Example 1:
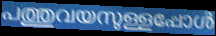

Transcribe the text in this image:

പത്തുവയസുള്ളപ്പോൾ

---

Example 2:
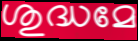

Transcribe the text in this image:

ശുദ്ധമേ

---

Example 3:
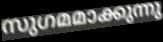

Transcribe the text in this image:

സുഗമമാക്കുന്നു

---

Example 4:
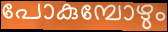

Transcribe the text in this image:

പോകുമ്പോഴും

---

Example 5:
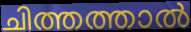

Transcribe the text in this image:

ചിത്തത്താൽ